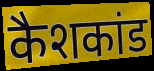
कैशकांड